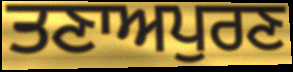
ਤਣਾਅਪੁਰਣ